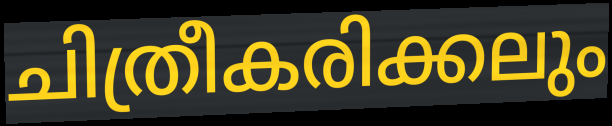
ചിത്രീകരിക്കലും